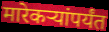
मारेकऱ्यांपर्यंत